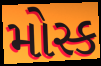
મોસ્ક